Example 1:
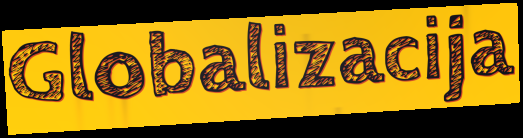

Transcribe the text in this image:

Globalizacija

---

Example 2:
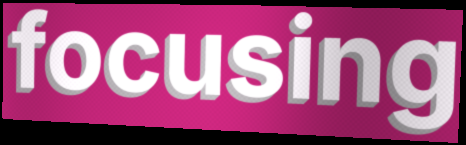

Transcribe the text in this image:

focusing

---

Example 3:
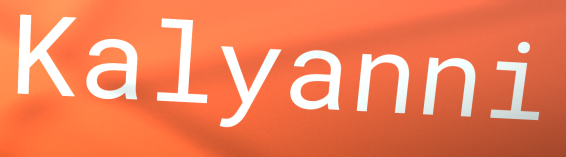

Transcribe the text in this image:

Kalyanni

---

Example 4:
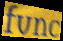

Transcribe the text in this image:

func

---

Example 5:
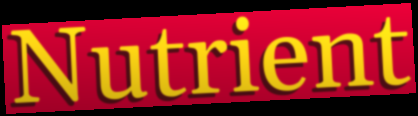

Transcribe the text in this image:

Nutrient